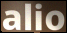
alio